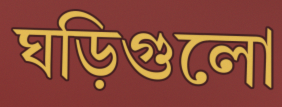
ঘড়িগুলো